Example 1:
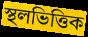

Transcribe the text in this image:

স্থলভিত্তিক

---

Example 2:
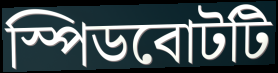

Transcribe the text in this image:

স্পিডবোটটি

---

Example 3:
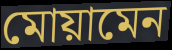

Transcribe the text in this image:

মোয়ামেন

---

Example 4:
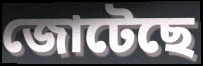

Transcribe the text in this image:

জোটেছে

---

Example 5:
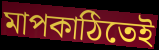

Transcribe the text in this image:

মাপকাঠিতেই